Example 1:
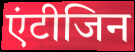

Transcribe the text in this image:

एंटीजिन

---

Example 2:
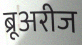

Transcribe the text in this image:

ब्रूअरीज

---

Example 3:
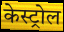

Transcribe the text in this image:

केस्ट्रोल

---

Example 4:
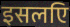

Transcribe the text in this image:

इसलएि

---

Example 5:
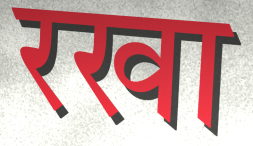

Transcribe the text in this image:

रखा